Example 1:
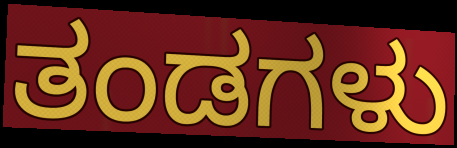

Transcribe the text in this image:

ತಂಡಗಳು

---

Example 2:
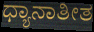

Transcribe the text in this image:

ಧ್ಯಾನಾತೀತ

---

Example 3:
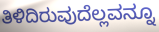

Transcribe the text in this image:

ತಿಳಿದಿರುವುದೆಲ್ಲವನ್ನೂ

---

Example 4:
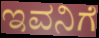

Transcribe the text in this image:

ಇವನಿಗೆ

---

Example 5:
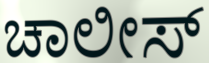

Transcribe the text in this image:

ಚಾಲೀಸ್